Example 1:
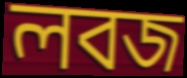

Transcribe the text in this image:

লবজ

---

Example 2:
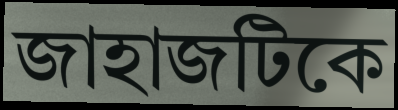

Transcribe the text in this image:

জাহাজটিকে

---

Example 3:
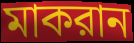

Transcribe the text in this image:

মাকরান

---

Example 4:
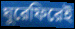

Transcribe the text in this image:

ঘুরেফিরেই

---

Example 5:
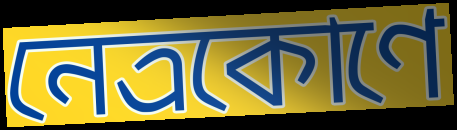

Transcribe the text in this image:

নেত্রকোণে